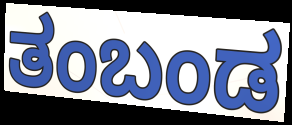
ತಂಬಂಡ